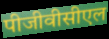
पीजीवीसीएल